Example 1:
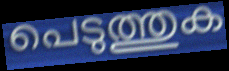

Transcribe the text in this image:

പെടുത്തുക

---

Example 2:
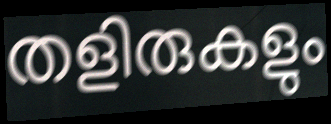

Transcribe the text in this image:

തളിരുകളും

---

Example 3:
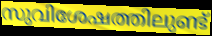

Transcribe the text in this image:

സുവിശേഷത്തിലുണ്ട്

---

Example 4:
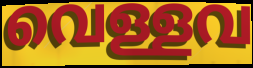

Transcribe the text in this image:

വെള്ളവ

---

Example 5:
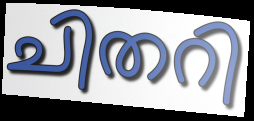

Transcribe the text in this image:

ചിതറി